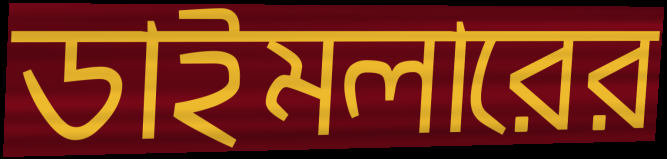
ডাইমলারের